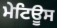
ਮੇਟਿਊਸ